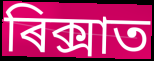
ৰিক্সাত